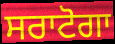
ਸਰਾਟੋਗਾ